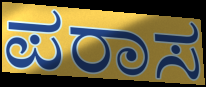
ಪರಾಸ